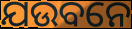
ଯଉବନେ